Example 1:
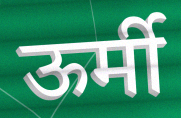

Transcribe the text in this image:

ऊर्मी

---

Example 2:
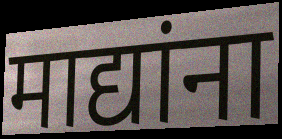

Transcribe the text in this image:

माद्यांना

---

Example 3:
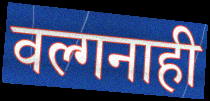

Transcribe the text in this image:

वल्गनाही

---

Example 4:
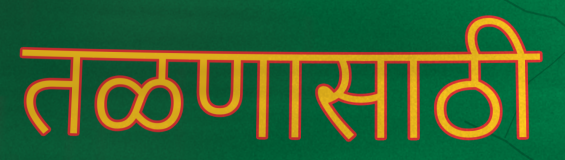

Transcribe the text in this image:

तळणासाठी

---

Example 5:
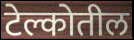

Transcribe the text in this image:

टेल्कोतील